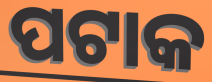
ପଟାକ